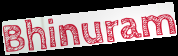
Bhinuram